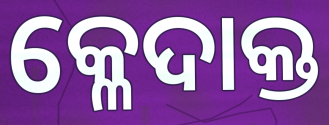
କ୍ଳେଦାକ୍ତ